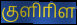
குளிரிள